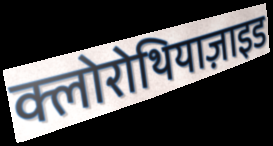
क्लोरोथियाज़ाइड